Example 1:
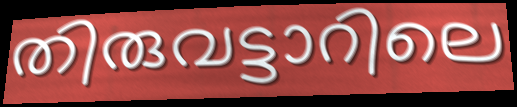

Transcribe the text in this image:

തിരുവട്ടാറിലെ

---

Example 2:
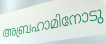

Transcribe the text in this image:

അബ്രഹാമിനോടു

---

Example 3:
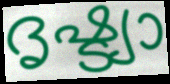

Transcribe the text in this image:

ദൃഷ്ട്യാ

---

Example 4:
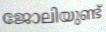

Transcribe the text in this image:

ജോലിയുണ്ട്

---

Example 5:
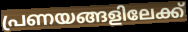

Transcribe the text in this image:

പ്രണയങ്ങളിലേക്ക്